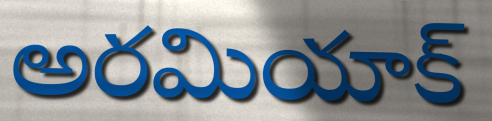
అరమియాక్